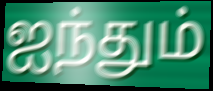
ஐந்தும்